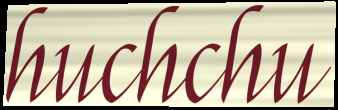
huchchu